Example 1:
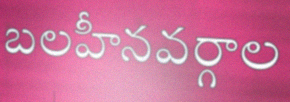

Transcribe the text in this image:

బలహీనవర్గాల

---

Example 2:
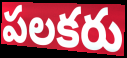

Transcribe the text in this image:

పలకరు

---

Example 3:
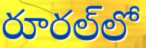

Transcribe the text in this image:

రూరల్‌లో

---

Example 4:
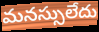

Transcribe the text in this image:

మనస్సులేదు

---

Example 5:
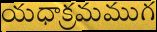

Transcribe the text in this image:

యధాక్రమముగ